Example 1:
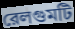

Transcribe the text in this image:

রেলগুমটি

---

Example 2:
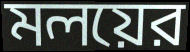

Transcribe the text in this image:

মলয়ের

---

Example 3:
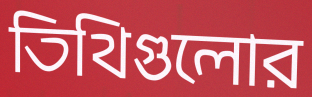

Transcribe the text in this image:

তিথিগুলোর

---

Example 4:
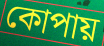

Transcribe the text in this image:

কোপায়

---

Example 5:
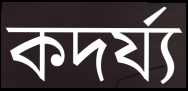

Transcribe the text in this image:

কদর্য্য